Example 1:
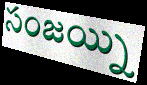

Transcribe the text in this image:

సంజయ్ని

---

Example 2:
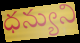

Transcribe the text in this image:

ధన్యుని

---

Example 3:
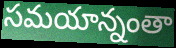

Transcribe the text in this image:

సమయాన్నంతా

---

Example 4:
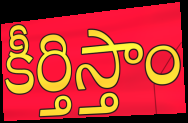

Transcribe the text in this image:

కీర్తిస్తాం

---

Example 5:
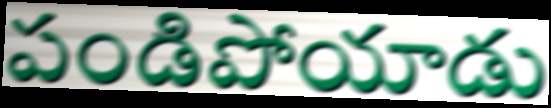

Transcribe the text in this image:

పండిపోయాడు